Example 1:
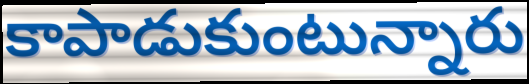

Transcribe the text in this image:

కాపాడుకుంటున్నారు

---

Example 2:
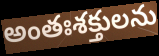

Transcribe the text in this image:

అంతఃశక్తులను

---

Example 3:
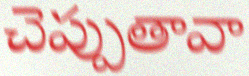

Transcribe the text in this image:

చెప్పుతావా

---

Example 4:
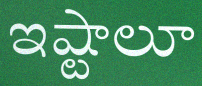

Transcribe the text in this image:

ఇష్టాలూ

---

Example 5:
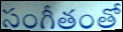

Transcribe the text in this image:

సంగీతంతో